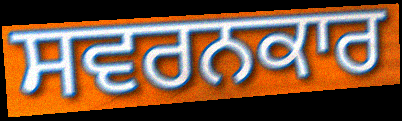
ਸਵਰਨਕਾਰ